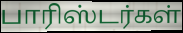
பாரிஸ்டர்கள்